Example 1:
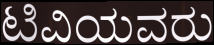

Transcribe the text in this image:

ಟಿವಿಯವರು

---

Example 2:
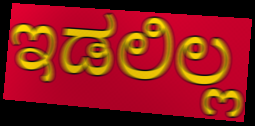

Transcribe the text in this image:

ಇಡಲಿಲ್ಲ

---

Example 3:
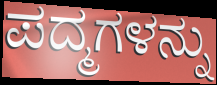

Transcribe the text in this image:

ಪದ್ಮಗಳನ್ನು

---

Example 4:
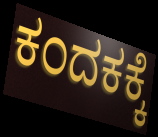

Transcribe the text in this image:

ಕಂದಕಕ್ಕೆ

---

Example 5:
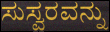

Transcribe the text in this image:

ಸುಸ್ವರವನ್ನು